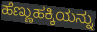
ಹೆಣ್ಣುಹಕ್ಕಿಯನ್ನು